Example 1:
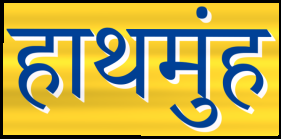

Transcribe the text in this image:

हाथमुंह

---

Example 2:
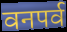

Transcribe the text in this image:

वनपर्व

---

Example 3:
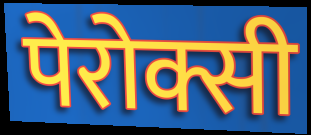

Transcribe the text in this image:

पेरोक्सी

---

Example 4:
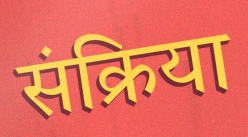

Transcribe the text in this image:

संक्रिया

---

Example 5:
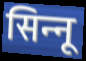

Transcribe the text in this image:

सिन्नू